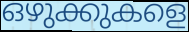
ഒഴുക്കുകളെ